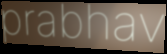
prabhav